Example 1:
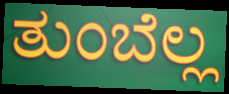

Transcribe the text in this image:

ತುಂಬೆಲ್ಲ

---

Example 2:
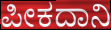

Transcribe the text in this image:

ಪೀಕದಾನಿ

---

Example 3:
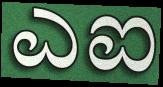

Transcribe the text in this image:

ಎಐ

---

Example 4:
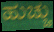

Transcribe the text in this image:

ಹುಚ್ಚು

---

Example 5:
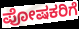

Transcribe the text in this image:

ಪೋಷಕರಿಗೆ